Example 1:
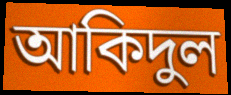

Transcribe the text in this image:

আকিদুল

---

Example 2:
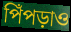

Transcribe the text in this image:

পিঁপড়াও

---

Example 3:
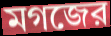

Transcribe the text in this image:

মগজের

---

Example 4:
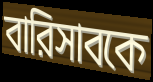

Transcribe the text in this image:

বারিসাবকে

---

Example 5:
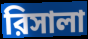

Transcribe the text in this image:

রিসালা